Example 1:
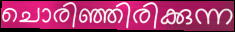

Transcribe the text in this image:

ചൊരിഞ്ഞിരിക്കുന്ന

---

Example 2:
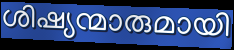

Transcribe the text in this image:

ശിഷ്യന്മാരുമായി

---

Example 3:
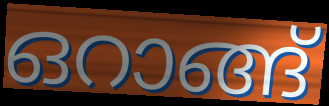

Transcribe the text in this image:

ഒറാങ്ങ്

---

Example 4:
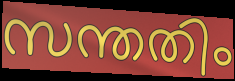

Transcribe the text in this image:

സന്തതിം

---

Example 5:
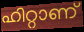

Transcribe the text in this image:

ഹിറ്റാണ്